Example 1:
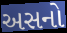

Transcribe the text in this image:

અસનો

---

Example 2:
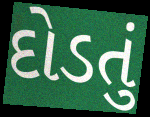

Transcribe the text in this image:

દોડતું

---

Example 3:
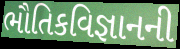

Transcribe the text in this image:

ભૌતિકવિજ્ઞાનની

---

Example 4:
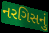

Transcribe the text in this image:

નરગિસનું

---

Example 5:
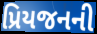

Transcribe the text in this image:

પ્રિયજનની